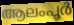
ആലംപൂർ